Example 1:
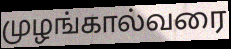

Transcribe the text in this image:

முழங்கால்வரை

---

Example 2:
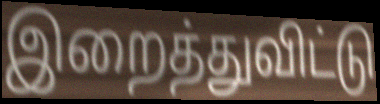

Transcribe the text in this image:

இறைத்துவிட்டு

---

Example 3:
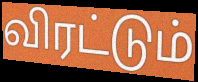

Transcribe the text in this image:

விரட்டும்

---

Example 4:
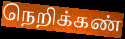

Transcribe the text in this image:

நெறிக்கண்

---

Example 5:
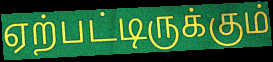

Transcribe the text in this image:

ஏற்பட்டிருக்கும்